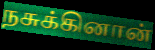
நசுக்கினான்